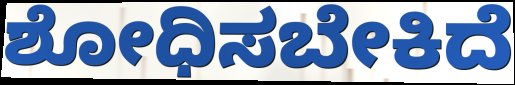
ಶೋಧಿಸಬೇಕಿದೆ